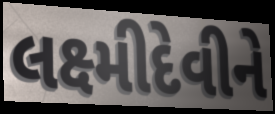
લક્ષ્મીદેવીને